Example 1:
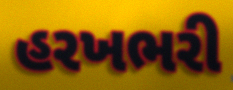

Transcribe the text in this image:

હરખભરી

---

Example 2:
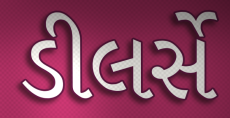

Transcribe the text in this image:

ડીલર્સે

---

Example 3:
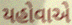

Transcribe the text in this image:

યહોવાએ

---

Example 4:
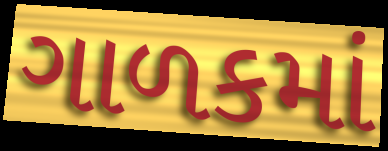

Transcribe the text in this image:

ગાળકમાં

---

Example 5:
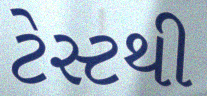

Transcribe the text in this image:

ટેસ્ટથી